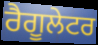
ਰੈਗੂਲੇਟਰ